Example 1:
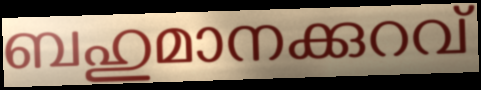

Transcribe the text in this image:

ബഹുമാനക്കുറവ്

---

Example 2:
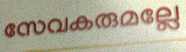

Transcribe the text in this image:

സേവകരുമല്ലേ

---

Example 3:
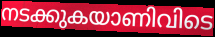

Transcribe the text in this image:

നടക്കുകയാണിവിടെ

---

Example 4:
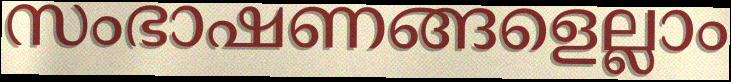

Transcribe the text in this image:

സംഭാഷണങ്ങളെല്ലാം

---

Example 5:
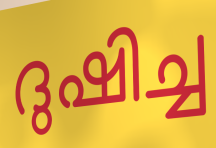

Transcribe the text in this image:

ദുഷിച്ച